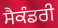
ਸੈਕੰਡਰੀ